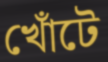
খোঁটে